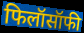
फिलॉसॉफी